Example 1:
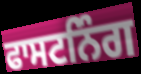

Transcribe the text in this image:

ਫਾਸਟਨਿੰਗ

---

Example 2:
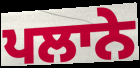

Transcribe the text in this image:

ਪਲਾਨੇ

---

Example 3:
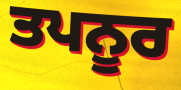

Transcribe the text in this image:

ਤਪਨੂਰ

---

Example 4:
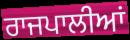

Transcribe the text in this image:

ਰਾਜਪਾਲੀਆਂ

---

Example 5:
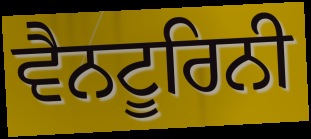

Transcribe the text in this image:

ਵੈਨਟੂਰਿਨੀ